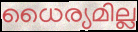
ധൈര്യമില്ല